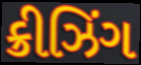
ક્રીઝિંગ